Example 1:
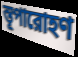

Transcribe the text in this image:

স্তূপারোহণ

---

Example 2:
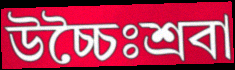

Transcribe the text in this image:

উচ্চৈঃশ্রবা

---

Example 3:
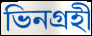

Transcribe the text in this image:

ভিনগ্রহী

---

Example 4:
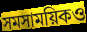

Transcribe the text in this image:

সমসাময়িকও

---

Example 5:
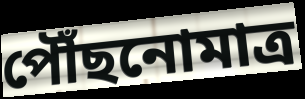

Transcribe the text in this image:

পৌঁছনোমাত্র